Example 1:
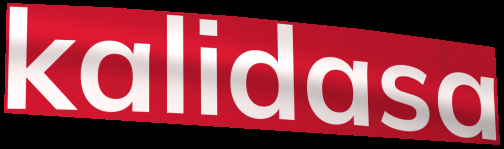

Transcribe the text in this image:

kalidasa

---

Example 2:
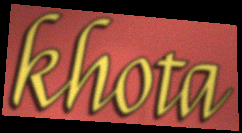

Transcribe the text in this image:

khota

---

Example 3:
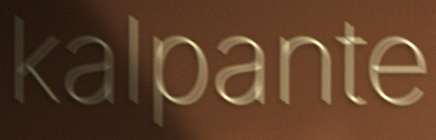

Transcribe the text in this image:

kalpante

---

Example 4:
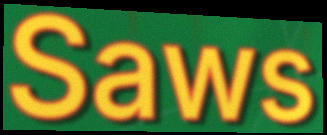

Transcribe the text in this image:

Saws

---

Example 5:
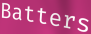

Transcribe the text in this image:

Batters